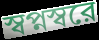
স্বপ্নস্বরে